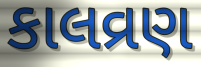
કાલવ્રણ